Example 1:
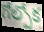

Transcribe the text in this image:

గోల్పోక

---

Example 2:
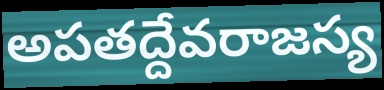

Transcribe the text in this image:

అపతద్దేవరాజస్య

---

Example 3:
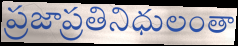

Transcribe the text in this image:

ప్రజాప్రతినిధులంతా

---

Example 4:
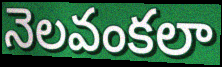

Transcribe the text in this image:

నెలవంకలా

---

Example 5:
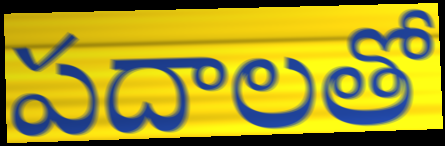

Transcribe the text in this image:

పదాలతో